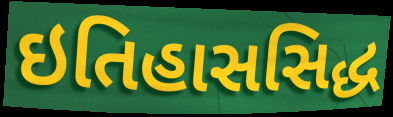
ઇતિહાસસિદ્ધ